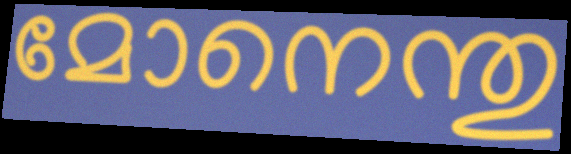
മോനെന്തു